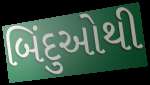
બિંદુઓથી